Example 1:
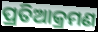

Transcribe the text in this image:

ପ୍ରତିଆକ୍ରମଣ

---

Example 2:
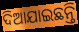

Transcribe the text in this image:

ଦିଆଯାଇଛନ୍ତି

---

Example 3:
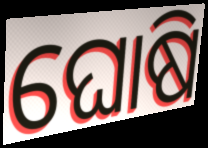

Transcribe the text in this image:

ଘୋଷି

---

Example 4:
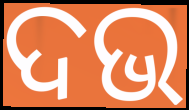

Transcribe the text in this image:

ଦଭ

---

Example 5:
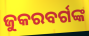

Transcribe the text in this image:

ଜୁକରବର୍ଗଙ୍କ